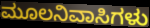
ಮೂಲನಿವಾಸಿಗಳು